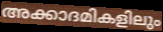
അക്കാദമികളിലും